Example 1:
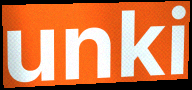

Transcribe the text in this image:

unki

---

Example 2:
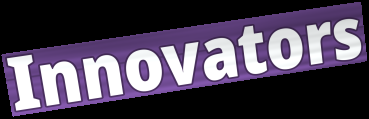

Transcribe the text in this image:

Innovators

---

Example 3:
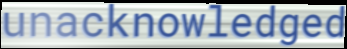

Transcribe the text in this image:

unacknowledged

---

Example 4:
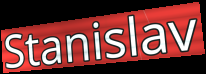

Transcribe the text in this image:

Stanislav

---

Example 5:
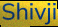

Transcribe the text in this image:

Shivji